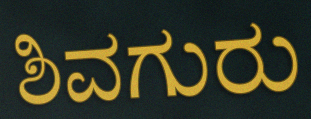
ಶಿವಗುರು